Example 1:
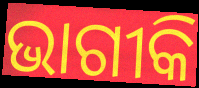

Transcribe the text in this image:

ଭାଗୀକି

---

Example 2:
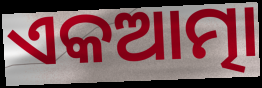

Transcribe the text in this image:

ଏକଆତ୍ମା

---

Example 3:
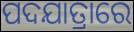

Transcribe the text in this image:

ପଦଯାତ୍ରାରେ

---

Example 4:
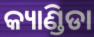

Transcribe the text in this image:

କ୍ୟାଣ୍ଡିଡା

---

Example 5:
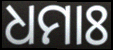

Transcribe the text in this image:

ଧମାଃ